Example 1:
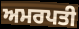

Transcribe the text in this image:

ਅਮਰਪਤੀ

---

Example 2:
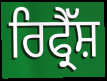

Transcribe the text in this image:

ਰਿਫ੍ਰੈੱਸ਼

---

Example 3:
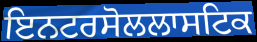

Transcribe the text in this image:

ਇਨਟਰਸੋਲਲਾਸਟਿਕ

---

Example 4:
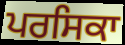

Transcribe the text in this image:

ਪਰਸਿਕਾ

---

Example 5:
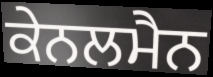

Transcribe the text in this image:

ਕੇਨਲਮੈਨ